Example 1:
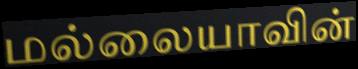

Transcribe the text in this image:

மல்லையாவின்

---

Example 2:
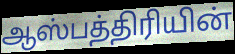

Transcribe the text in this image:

ஆஸ்பத்திரியின்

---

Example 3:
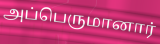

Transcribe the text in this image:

அப்பெருமானார்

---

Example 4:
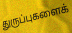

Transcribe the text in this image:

துருப்புகளைக்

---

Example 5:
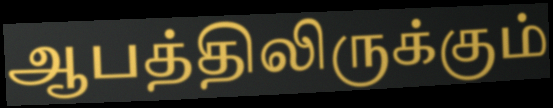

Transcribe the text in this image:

ஆபத்திலிருக்கும்